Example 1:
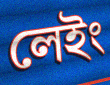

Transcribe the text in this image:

লেইং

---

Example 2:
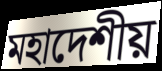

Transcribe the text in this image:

মহাদেশীয়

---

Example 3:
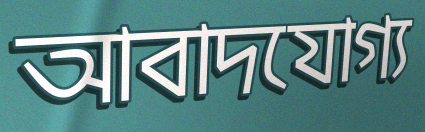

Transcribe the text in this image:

আবাদযোগ্য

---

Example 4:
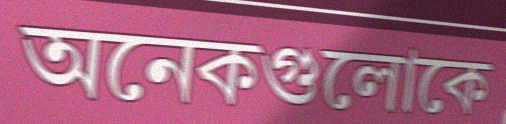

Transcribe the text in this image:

অনেকগুলোকে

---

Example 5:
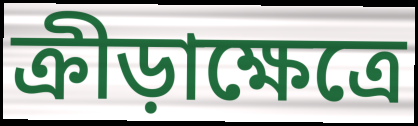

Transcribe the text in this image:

ক্রীড়াক্ষেত্রে